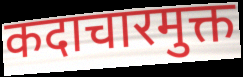
कदाचारमुक्त